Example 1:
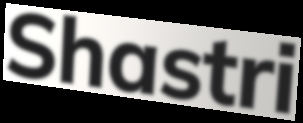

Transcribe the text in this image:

Shastri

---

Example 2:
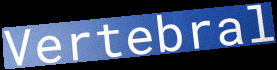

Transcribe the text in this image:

Vertebral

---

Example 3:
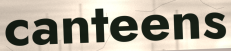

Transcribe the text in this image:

canteens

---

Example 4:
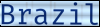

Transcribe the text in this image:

Brazil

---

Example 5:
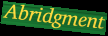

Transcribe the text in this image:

Abridgment